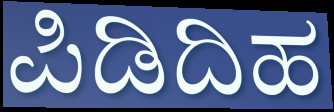
ಪಿಡಿದಿಹ